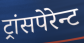
ट्रांसपेरेन्ट